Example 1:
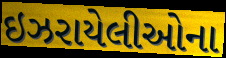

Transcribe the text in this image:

ઇઝરાયેલીઓના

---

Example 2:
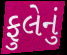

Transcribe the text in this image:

ફુલેનું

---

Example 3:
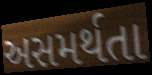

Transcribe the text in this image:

અસમર્થતા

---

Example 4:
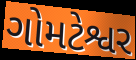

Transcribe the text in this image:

ગોમટેશ્વર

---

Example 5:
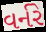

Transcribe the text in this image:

વર્નરે